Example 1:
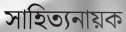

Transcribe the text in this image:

সাহিত্যনায়ক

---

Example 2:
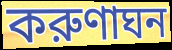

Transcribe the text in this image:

করুণাঘন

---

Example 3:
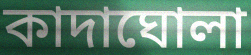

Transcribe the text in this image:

কাদাঘোলা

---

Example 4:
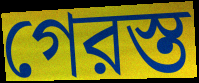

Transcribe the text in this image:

গেরস্ত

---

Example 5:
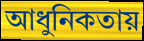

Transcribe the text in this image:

আধুনিকতায়